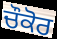
ਚੌਕੋਰ